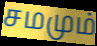
சமமும்